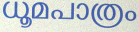
ധൂമപാത്രം